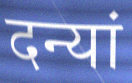
दन्यां